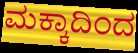
ಮಕ್ಕಾದಿಂದ